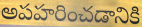
అపహరించడానికి